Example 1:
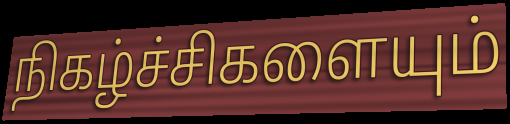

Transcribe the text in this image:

நிகழ்ச்சிகளையும்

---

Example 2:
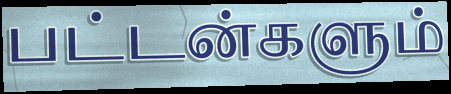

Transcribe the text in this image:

பட்டன்களும்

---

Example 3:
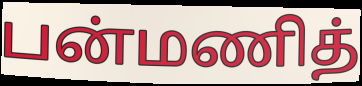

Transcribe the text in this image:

பன்மணித்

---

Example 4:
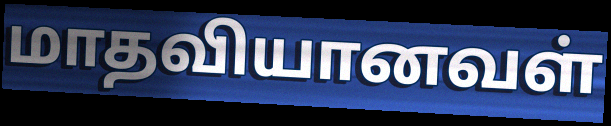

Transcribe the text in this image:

மாதவியானவள்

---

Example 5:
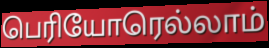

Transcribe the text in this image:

பெரியோரெல்லாம்